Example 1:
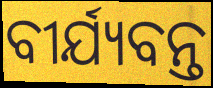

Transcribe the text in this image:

ବୀର୍ଯ୍ୟବନ୍ତ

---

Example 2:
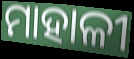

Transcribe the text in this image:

ମାହାଳୀ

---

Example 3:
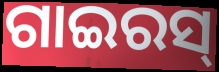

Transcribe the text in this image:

ଗାଇରସ୍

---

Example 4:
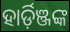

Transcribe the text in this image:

ହାର୍ଡ଼ିଞ୍ଜଙ୍କ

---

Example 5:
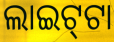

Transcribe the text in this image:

ଲାଇଟ୍‍ଟା